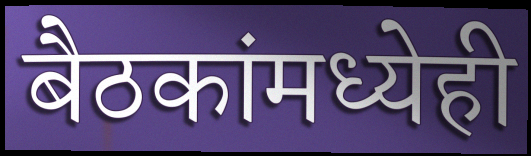
बैठकांमध्येही